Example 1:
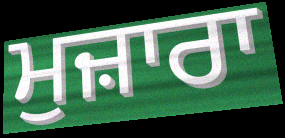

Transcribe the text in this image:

ਮੁਜ਼ਾਰਾ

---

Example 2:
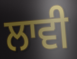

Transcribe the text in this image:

ਲਾਵੀ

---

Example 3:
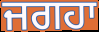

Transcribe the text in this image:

ਜਗਹਾ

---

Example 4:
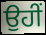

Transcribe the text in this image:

ਉਹੀਂ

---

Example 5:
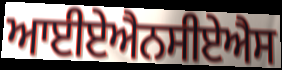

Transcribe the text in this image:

ਆਈਏਐਨਸੀਏਐਸ